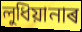
লুধিয়ানাৰ